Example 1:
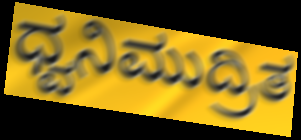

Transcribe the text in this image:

ಧ್ವನಿಮುದ್ರಿತ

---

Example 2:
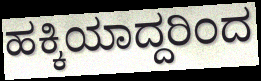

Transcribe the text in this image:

ಹಕ್ಕಿಯಾದ್ದರಿಂದ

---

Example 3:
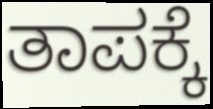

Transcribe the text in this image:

ತಾಪಕ್ಕೆ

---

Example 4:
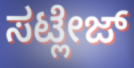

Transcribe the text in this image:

ಸಟ್ಲೇಜ್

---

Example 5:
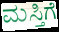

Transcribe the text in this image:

ಮಸ್ತಿಗೆ